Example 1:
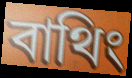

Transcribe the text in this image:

বাথিং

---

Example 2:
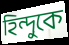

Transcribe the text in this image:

হিন্দুকে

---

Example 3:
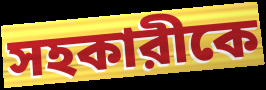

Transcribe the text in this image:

সহকারীকে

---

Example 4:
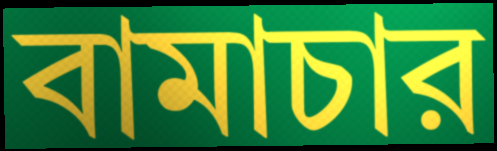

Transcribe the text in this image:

বামাচার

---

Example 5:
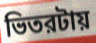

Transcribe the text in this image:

ভিতরটায়